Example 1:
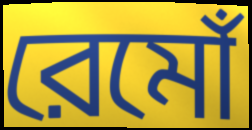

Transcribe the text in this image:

রেমোঁ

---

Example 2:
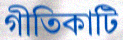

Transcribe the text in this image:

গীতিকাটি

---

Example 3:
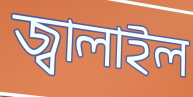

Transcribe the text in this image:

জ্বালাইল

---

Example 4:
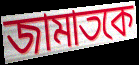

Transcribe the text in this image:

জামাতকে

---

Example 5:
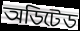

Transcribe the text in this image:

অডিটেড